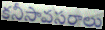
కనీసావసరాలు